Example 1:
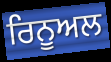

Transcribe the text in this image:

ਰਿਨੂਅਲ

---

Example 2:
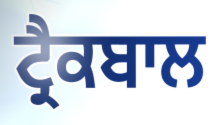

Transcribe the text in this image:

ਟ੍ਰੈਕਬਾਲ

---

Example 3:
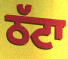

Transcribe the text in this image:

ਠੱਟਾ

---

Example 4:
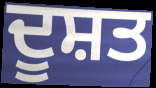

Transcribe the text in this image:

ਦੂਸ਼ਤ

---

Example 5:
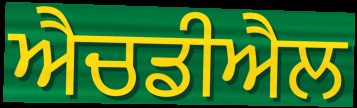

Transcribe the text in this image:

ਐਚਡੀਐਲ